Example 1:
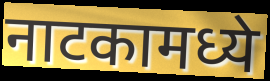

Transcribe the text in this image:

नाटकामध्ये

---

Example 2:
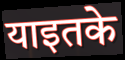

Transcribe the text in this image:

याइतके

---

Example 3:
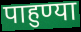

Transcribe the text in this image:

पाहुण्या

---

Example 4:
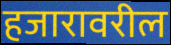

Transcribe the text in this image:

हजारावरील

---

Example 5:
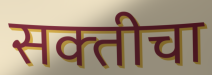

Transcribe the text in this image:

सक्‍तीचा